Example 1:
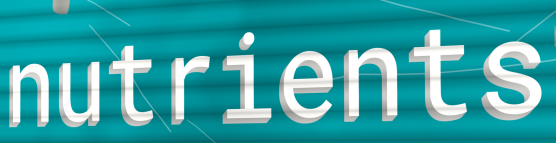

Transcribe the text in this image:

nutrients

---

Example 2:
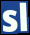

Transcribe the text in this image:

sl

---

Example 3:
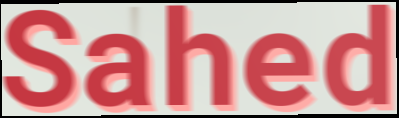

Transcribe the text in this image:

Sahed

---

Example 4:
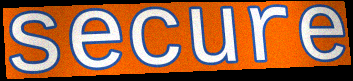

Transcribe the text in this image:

secure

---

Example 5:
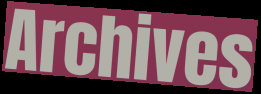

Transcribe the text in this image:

Archives